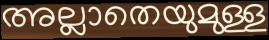
അല്ലാതെയുമുള്ള